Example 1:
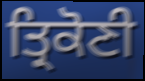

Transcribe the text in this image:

ਤ੍ਰਿਕੋਣੀ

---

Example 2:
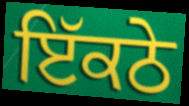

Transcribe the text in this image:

ਇੱਕਠੇ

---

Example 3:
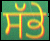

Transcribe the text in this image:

ਸੱਭੇ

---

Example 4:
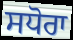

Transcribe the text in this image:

ਸਧੋਰਾ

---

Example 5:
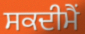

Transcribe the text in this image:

ਸਕਦੀਮੈਂ